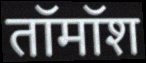
तॉमॉश